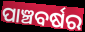
ପାଞ୍ଚବର୍ଷର